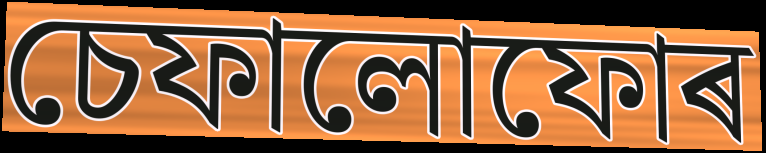
চেফালোফোৰ